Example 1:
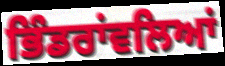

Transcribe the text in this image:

ਭਿੰਡਰਾਂਵਲਿਆਂ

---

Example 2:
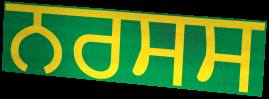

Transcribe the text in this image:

ਨਰਸਸ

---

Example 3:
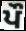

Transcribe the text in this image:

ਪੌ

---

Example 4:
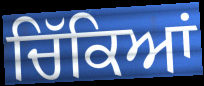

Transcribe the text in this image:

ਚਿੱਕਿਆਂ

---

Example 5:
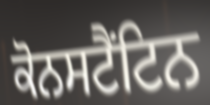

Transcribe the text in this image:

ਕੋਨਸਟੈਂਟਿਨ